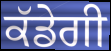
ਕੱਡੇਗੀ